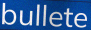
bullete